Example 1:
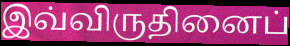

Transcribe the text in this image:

இவ்விருதினைப்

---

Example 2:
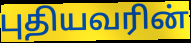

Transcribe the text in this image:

புதியவரின்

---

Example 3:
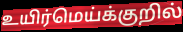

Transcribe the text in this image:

உயிர்மெய்க்குறில்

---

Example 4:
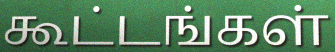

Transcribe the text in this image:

கூட்டங்கள்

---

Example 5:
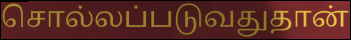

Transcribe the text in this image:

சொல்லப்படுவதுதான்